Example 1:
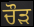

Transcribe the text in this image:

ਚੌੜ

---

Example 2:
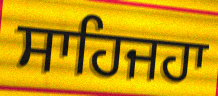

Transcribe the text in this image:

ਸਾਹਿਜਹਾ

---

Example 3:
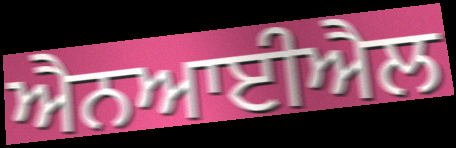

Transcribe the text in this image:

ਐਨਆਈਐਲ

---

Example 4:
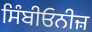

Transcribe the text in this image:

ਸਿੰਬੀਓਨੀਜ਼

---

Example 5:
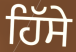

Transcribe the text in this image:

ਹਿੱਸੇ